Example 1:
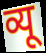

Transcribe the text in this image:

व्यू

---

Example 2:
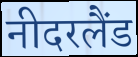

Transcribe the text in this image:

नीदरलैंड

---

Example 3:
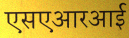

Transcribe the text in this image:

एसएआरआई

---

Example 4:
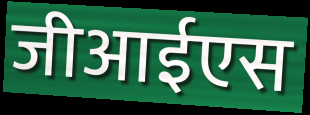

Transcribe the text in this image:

जीआईएस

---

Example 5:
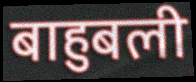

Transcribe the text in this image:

बाहुबली